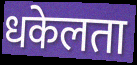
धकेलता